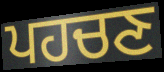
ਪਹਚਣ